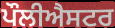
ਪੌਲੀਐਸਟਰ